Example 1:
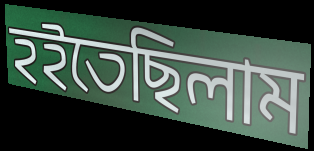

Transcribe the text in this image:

হইতেছিলাম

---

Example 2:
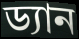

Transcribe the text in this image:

ড্যান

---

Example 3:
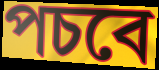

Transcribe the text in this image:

পচবে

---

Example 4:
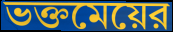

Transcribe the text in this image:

ভক্তমেয়ের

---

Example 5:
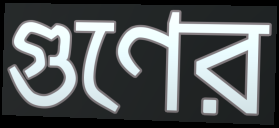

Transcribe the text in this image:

গুণের